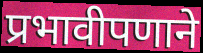
प्रभावीपणाने